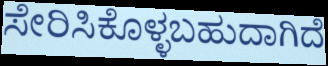
ಸೇರಿಸಿಕೊಳ್ಳಬಹುದಾಗಿದೆ